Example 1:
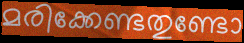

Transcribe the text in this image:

മരിക്കേണ്ടതുണ്ടോ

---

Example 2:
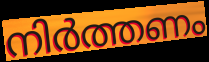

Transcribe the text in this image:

നിർത്തണം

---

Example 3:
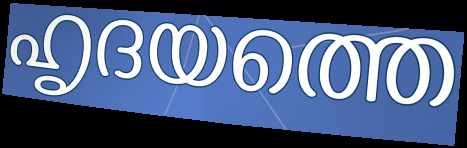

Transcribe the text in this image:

ഹൃദയത്തെ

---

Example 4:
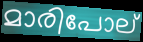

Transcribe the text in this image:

മാരിപോല്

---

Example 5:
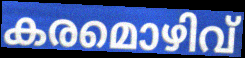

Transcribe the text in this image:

കരമൊഴിവ്